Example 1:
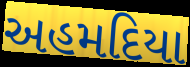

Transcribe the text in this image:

અહમદિયા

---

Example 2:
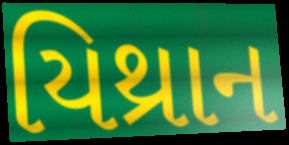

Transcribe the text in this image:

યિથ્રાન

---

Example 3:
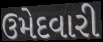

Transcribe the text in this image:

ઉમેદવારી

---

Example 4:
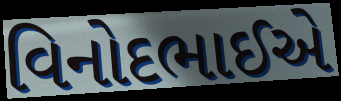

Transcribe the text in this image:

વિનોદભાઈએ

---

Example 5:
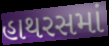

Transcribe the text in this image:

હાથરસમાં